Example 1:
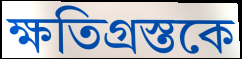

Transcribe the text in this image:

ক্ষতিগ্রস্তকে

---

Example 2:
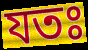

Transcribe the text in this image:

যতঃ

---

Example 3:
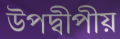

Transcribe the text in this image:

উপদ্বীপীয়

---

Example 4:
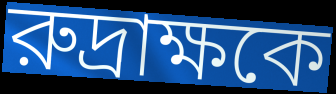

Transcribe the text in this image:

রুদ্রাক্ষকে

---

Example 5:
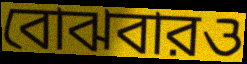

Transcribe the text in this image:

বোঝবারও